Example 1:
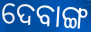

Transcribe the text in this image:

ଦେବାଙ୍ଗ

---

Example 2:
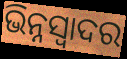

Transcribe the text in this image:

ଭିନ୍ନସ୍ବାଦର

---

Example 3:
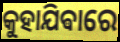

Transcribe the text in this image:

କୁହାଯିଵାରେ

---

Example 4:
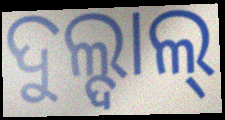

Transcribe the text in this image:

ଦୁଲ୍ଦାଲ୍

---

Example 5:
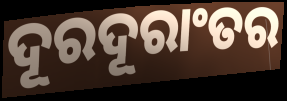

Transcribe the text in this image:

ଦୂରଦୂରାଂତର